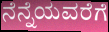
ನೆನ್ನೆಯವರೆಗೆ